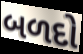
બળદો